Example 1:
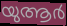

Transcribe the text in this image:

യുആർ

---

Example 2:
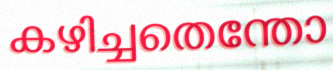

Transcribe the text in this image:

കഴിച്ചതെന്തോ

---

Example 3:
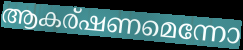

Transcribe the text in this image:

ആകര്ഷണമെന്നോ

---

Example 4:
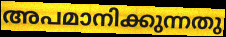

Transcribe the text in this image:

അപമാനിക്കുന്നതു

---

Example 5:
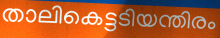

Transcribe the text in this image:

താലികെട്ടടിയന്തിരം